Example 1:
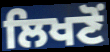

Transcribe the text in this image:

ਲਿਖਣੋਂ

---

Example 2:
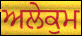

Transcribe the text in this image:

ਅਲੇਕੁਮ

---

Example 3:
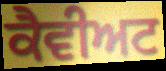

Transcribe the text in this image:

ਕੈਵੀਅਟ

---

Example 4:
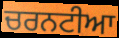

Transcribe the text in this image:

ਚਰਨਟੀਆ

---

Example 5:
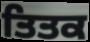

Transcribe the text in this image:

ਤਿਤਕ